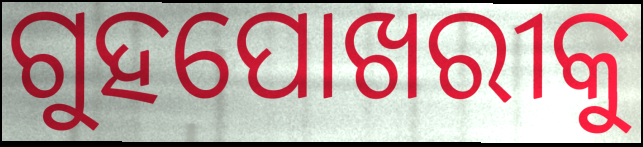
ଗୁହପୋଖରୀକୁ